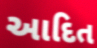
આદિત